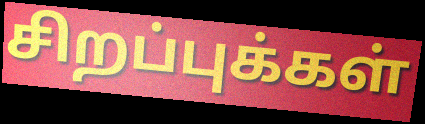
சிறப்புக்கள்